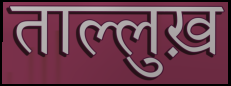
ताल्लुख़